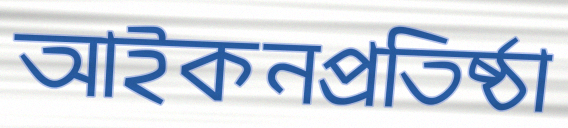
আইকনপ্রতিষ্ঠা